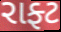
રાફ્ટ